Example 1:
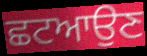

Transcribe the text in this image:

ਛਟਆਉਣ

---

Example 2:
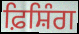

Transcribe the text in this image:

ਫ਼ਿਸ਼ਿੰਗ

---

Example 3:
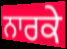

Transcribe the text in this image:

ਨਾਰਕੇ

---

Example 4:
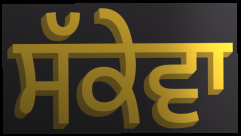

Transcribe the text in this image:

ਸੱਕੇਵਾ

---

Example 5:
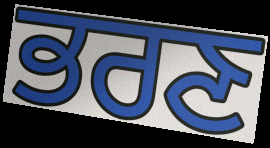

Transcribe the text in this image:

ਭਰਣ